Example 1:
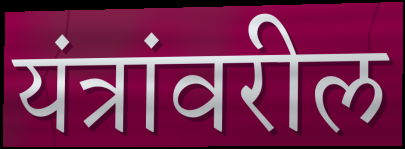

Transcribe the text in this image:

यंत्रांवरील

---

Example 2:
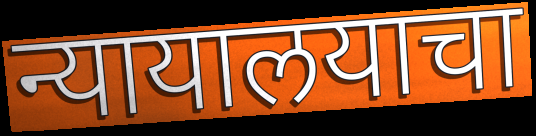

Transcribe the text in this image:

न्यायालयाचा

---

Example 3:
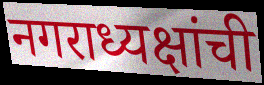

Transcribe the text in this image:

नगराध्यक्षांची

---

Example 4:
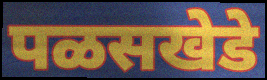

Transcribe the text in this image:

पळसखेडे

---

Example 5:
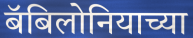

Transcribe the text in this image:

बॅबिलोनियाच्या